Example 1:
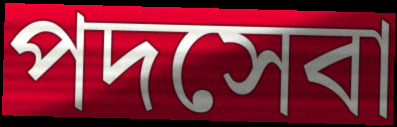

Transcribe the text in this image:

পদসেবা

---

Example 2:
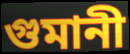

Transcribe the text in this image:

গুমানী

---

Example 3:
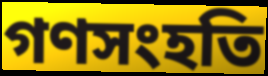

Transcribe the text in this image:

গণসংহতি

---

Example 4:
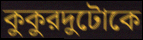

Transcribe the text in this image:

কুকুরদুটোকে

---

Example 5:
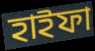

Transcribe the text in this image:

হাইফা